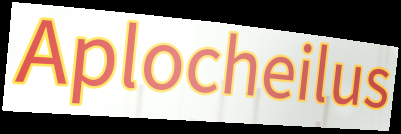
Aplocheilus